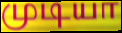
முடியா